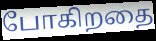
போகிறதை